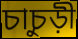
চাচুড়ী